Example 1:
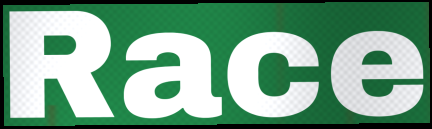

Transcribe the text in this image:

Race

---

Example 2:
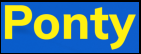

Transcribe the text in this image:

Ponty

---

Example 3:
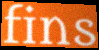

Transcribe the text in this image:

fins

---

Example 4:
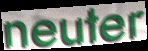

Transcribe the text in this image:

neuter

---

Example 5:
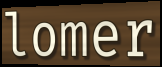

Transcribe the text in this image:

lomer